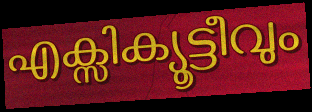
എക്സിക്യൂട്ടീവും